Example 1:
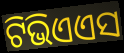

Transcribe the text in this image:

ଟିଭିଏଏସ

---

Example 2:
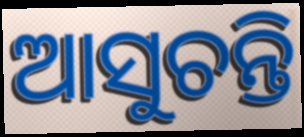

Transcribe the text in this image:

ଆସୁଚନ୍ତି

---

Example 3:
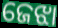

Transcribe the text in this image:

ଜେଝା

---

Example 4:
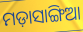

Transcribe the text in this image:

ମଡ଼ାସାଙ୍ଗିଆ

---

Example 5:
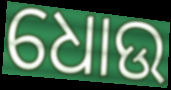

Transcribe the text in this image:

ଧୋଉ